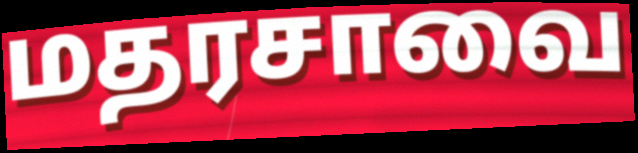
மதரசாவை